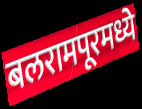
बलरामपूरमध्ये